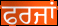
ਫਰਜਾਂ